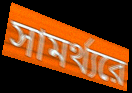
সামর্থ্যরে